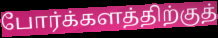
போர்க்களத்திற்குத்